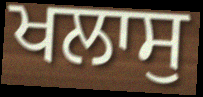
ਖਲਾਸੁ